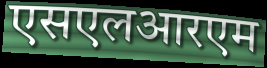
एसएलआरएम